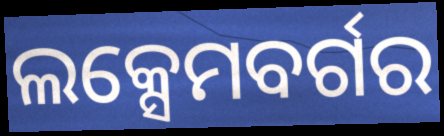
ଲକ୍ସେମବର୍ଗର